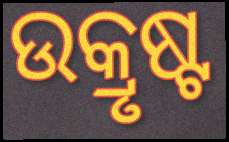
ଉକ୍ରୃଷ୍ଟ